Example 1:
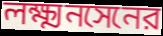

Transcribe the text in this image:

লক্ষ্মনসেনের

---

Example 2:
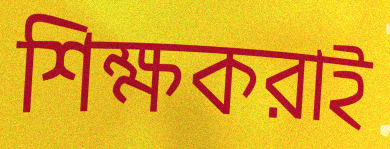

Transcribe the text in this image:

শিক্ষকরাই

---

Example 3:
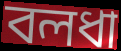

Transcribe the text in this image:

বলধা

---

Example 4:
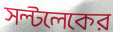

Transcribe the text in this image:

সল্টলেকের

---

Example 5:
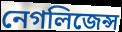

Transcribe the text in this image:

নেগলিজেন্স